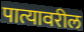
पात्यावरील